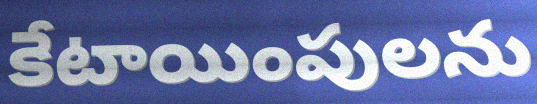
కేటాయింపులను